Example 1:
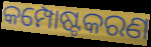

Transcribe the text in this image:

କମ୍ପୋଷ୍ଟକରଣ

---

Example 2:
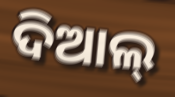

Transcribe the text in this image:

ଦିଆଲ୍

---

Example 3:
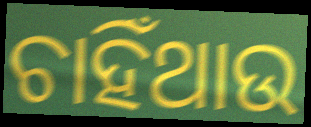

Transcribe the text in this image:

ଚାହିଁଥାଉ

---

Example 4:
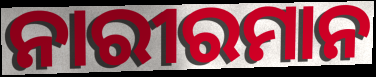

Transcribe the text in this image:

ନାରୀରମାନ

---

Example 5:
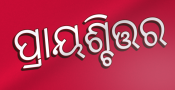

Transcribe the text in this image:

ପ୍ରାୟଶ୍ଚିତ୍ତର